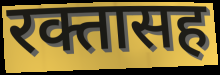
रक्तासह